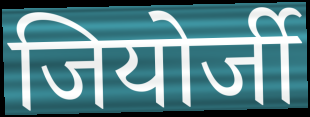
जियोर्जी